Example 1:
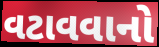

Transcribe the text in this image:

વટાવવાનો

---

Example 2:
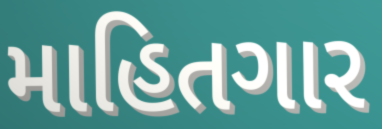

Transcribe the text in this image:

માહિતગાર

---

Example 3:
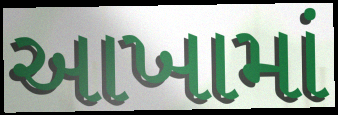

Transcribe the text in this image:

આખામાં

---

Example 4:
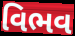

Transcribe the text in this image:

વિભવ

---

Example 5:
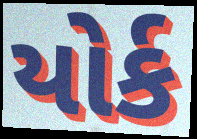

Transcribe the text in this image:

યોર્ક